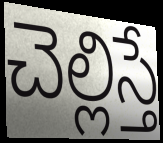
చెల్లిస్తే